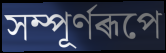
সম্পূৰ্ণৰূপে